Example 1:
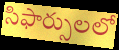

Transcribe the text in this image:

సిఫార్సులలో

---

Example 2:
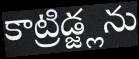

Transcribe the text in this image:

కాట్రిడ్జ్లను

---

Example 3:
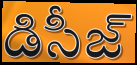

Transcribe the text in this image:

డిసీజ్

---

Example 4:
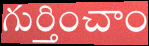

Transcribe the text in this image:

గుర్తించాం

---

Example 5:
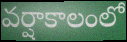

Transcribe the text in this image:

వర్షాకాలంలో